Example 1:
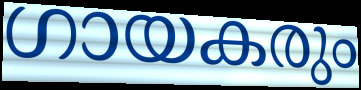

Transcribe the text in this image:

ഗായകരും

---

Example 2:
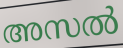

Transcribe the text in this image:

അസൽ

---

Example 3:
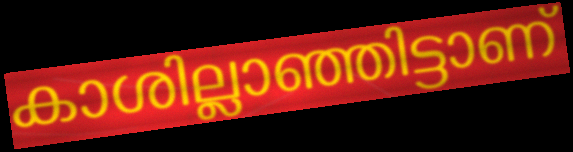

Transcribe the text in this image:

കാശില്ലാഞ്ഞിട്ടാണ്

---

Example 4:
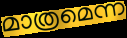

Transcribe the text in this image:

മാത്രമെന്ന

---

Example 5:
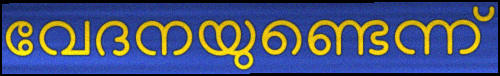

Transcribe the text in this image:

വേദനയുണ്ടെന്ന്